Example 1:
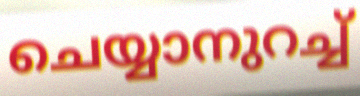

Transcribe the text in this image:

ചെയ്യാനുറച്ച്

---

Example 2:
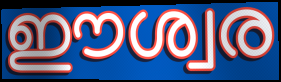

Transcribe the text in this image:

ഈശ്വര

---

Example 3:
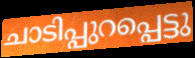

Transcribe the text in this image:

ചാടിപ്പുറപ്പെട്ടു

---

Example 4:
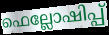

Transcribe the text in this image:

ഫെല്ലോഷിപ്പ്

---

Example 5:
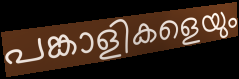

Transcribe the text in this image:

പങ്കാളികളെയും